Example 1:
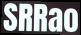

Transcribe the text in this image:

SRRao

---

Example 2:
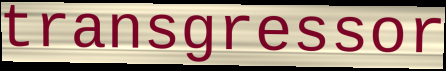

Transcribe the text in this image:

transgressor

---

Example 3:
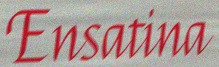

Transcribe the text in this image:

Ensatina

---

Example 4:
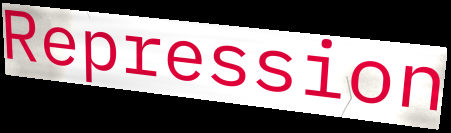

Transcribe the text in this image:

Repression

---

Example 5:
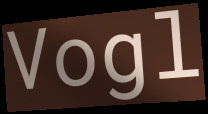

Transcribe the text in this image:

Vogl